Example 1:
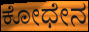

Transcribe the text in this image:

ಕೋಧೇನ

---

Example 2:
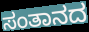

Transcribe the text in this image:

ಸಂತಾನದ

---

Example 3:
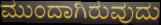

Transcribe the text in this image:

ಮುಂದಾಗಿರುವುದು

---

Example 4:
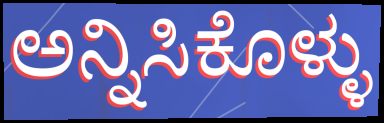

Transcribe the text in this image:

ಅನ್ನಿಸಿಕೊಳ್ಳು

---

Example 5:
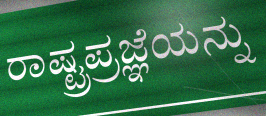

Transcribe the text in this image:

ರಾಷ್ಟ್ರಪ್ರಜ್ಞೆಯನ್ನು